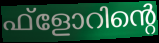
ഫ്ളോറിന്റെ